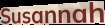
Susannah